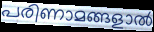
പരിണാമങ്ങളാൽ